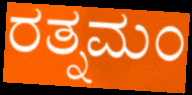
ರತ್ನಮಂ